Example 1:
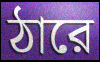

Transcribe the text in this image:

ঠারে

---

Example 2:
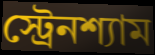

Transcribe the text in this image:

স্ট্রেনশ্যাম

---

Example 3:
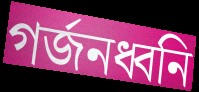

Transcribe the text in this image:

গর্জনধ্বনি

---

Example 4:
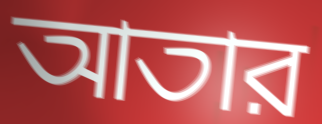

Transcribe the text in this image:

আতার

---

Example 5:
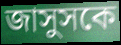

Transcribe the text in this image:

জাসুসকে